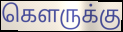
கௌருக்கு